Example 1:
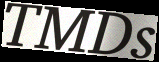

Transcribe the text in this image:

TMDs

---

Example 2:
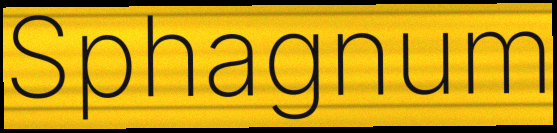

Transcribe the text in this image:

Sphagnum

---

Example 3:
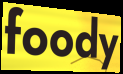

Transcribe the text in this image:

foody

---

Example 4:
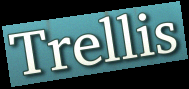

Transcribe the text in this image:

Trellis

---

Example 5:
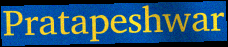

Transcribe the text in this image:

Pratapeshwar